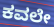
ಕವಲೇ